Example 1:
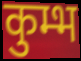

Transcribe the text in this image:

कुम्भ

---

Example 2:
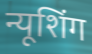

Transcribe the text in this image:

न्यूशिंग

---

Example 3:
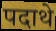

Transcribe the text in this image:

पदाथे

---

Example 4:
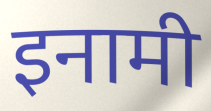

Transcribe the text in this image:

इनामी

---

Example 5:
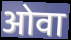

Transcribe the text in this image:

ओवा